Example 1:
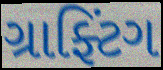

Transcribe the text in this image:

ગ્રાફ્ટિંગ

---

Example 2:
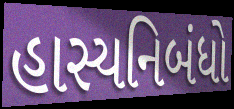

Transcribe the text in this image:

હાસ્યનિબંધો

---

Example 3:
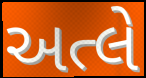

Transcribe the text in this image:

અત્લે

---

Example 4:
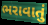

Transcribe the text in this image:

ભરાવાતું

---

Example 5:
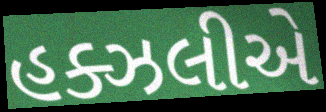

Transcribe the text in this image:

હક્ઝલીએ